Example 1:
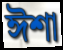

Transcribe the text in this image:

ঈশা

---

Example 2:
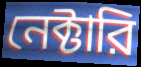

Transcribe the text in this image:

নেক্টারি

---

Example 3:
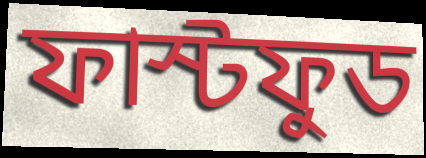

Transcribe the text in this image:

ফাস্টফুড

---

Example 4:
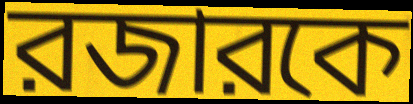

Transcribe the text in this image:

রজারকে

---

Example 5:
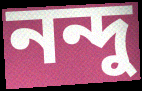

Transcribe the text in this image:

নন্দু